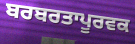
ਬਰਬਰਤਾਪੂਰਵਕ